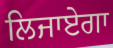
ਲਿਜਾਏਗਾ